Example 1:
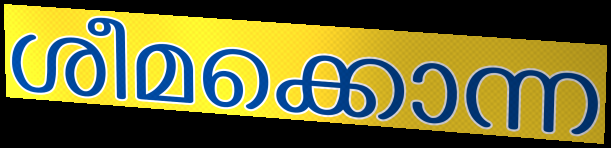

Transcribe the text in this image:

ശീമക്കൊന്ന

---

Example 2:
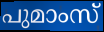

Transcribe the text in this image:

പുമാംസ്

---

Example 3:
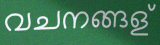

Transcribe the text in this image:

വചനങ്ങള്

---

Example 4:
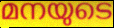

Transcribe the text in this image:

മനയുടെ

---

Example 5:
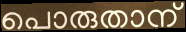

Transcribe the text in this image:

പൊരുതാന്